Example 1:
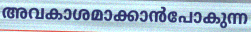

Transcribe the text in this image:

അവകാശമാക്കാൻപോകുന്ന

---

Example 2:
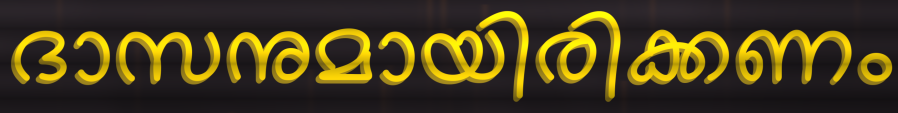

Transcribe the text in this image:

ദാസനുമായിരിക്കണം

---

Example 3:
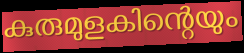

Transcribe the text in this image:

കുരുമുളകിന്റെയും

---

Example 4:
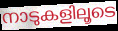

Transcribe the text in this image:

നാടുകളിലൂടെ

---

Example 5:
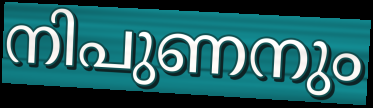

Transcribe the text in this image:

നിപുണനും